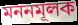
মননমূলক